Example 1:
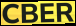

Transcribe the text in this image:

CBER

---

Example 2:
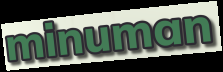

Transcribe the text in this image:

minuman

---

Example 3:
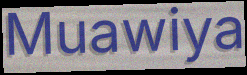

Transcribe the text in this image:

Muawiya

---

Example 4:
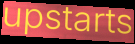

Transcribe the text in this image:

upstarts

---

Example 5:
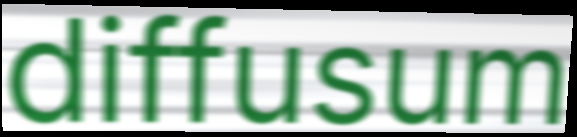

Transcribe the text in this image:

diffusum